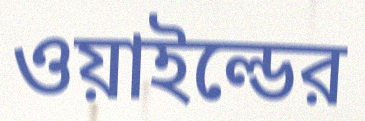
ওয়াইল্ডের